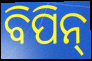
ବିପିନ୍